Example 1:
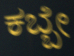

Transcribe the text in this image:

ಕಬ್ಬೇ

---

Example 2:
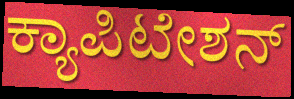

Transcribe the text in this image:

ಕ್ಯಾಪಿಟೇಶನ್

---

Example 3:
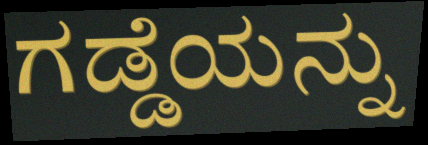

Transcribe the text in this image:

ಗಡ್ಡೆಯನ್ನು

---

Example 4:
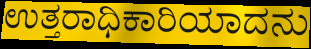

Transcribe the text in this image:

ಉತ್ತರಾಧಿಕಾರಿಯಾದನು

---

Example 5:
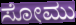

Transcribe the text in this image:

ಸೋಮು